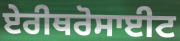
ਏਰੀਥਰੋਸਾਈਟ